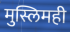
मुस्लिमही